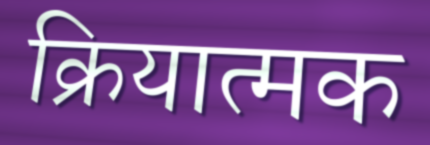
क्रियात्मक